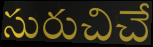
సురుచిచే